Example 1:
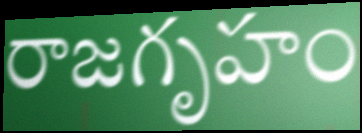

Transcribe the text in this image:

రాజగృహం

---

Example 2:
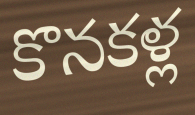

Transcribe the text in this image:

కొనకళ్ల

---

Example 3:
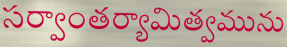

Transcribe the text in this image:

సర్వాంతర్యామిత్వమును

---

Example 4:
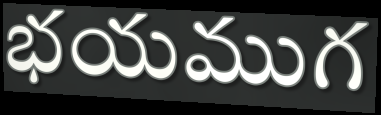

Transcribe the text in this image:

భయముగ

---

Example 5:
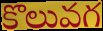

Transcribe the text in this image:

కొలువగ